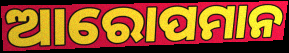
ଆରୋପମାନ